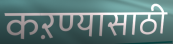
कऱण्यासाठी